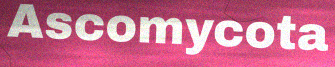
Ascomycota